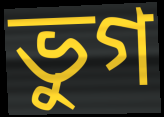
ভুগ